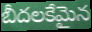
బీదలకేమైన